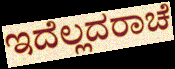
ಇದೆಲ್ಲದರಾಚೆ